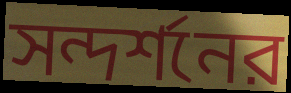
সন্দর্শনের